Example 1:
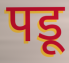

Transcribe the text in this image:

पडू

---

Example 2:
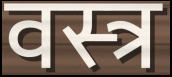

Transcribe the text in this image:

वस्त्र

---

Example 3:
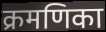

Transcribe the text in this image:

क्रमणिका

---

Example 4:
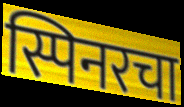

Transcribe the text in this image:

स्पिनरचा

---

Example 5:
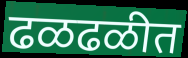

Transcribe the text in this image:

ढळढळीत